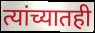
त्यांच्यातही